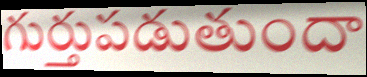
గుర్తుపడుతుందా